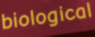
biological